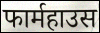
फार्महाउस